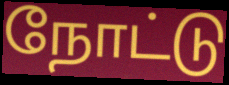
நோட்டு